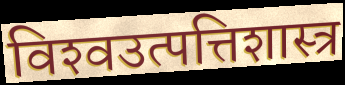
विश्वउत्पत्तिशास्त्र